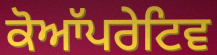
ਕੋਆੱਪਰੇਟਿਵ